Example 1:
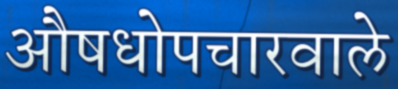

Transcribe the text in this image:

औषधोपचारवाले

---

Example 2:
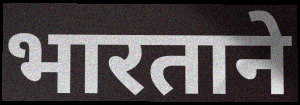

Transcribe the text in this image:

भारताने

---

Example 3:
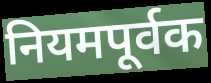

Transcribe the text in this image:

नियमपूर्वक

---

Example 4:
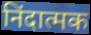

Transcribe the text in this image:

निंदात्मक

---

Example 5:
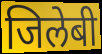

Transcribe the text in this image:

जिलेबी